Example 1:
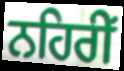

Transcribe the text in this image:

ਨਹਿਰੀਂ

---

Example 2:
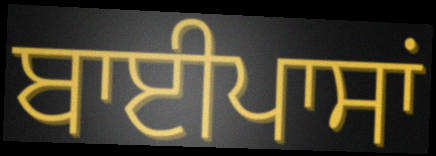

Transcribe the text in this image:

ਬਾਈਪਾਸਾਂ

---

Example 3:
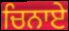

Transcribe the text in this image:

ਚਿਨਾਏ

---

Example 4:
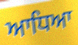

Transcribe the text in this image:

ਆਧਿਆ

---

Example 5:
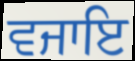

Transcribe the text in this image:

ਵਜਾਇ